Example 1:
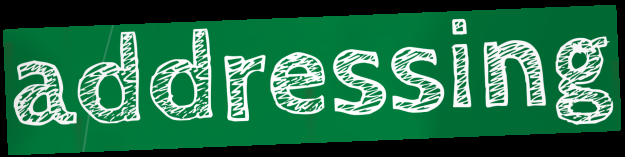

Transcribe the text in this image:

addressing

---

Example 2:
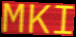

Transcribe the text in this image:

MKI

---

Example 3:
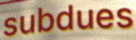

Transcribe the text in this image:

subdues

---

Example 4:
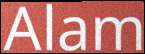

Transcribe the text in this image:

Alam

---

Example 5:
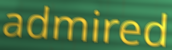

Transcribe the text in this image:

admired